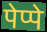
पेप्पे